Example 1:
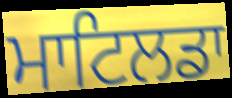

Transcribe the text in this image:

ਮਾਟਿਲਡਾ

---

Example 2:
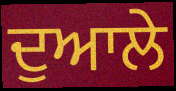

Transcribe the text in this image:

ਦੁਆਲੇ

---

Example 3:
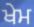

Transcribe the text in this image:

ਖੇਮ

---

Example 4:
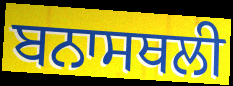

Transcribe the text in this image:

ਬਨਾਸਥਲੀ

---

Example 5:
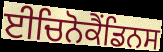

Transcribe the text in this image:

ਈਚਿਨੋਕੈਂਡਿਨਸ